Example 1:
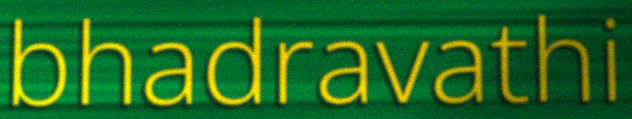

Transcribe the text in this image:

bhadravathi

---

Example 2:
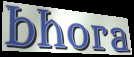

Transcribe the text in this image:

bhora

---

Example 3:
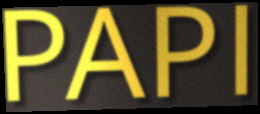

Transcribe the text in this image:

PAPI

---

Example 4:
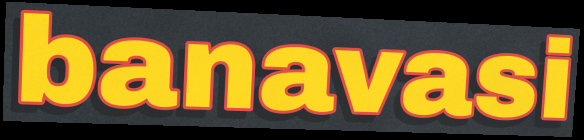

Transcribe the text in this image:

banavasi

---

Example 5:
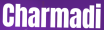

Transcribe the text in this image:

Charmadi